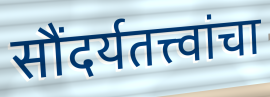
सौंदर्यतत्त्वांचा